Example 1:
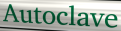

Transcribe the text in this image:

Autoclave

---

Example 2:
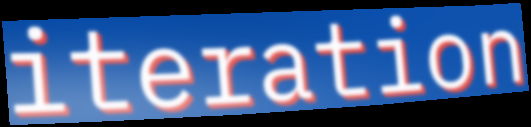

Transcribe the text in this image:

iteration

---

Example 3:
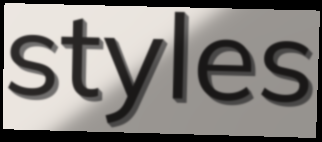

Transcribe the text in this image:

styles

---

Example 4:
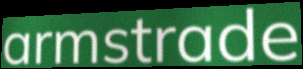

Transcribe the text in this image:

armstrade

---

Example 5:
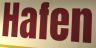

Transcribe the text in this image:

Hafen